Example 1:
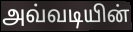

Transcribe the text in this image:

அவ்வடியின்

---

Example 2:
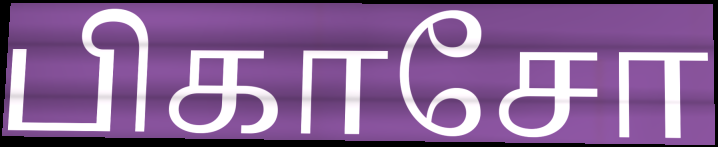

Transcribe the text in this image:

பிகாசோ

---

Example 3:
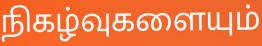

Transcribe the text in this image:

நிகழ்வுகளையும்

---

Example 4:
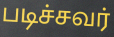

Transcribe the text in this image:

படிச்சவர்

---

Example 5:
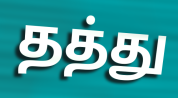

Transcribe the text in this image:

தத்து